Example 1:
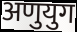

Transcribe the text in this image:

अणुयुग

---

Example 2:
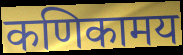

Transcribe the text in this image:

कणिकामय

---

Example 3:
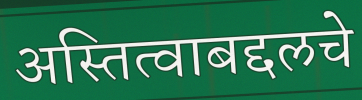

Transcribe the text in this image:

अस्तित्वाबद्दलचे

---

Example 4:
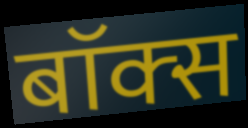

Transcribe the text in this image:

बॉक्‍स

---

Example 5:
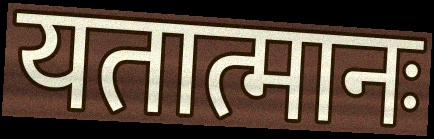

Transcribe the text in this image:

यतात्मानः